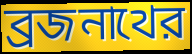
ব্রজনাথের